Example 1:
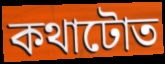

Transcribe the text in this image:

কথাটোত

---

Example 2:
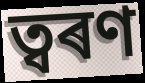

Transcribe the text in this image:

ত্বৰণ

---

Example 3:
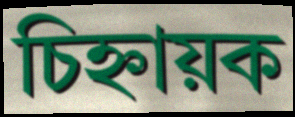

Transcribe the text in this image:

চিহ্নায়ক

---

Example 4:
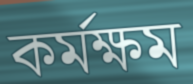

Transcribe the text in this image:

কৰ্মক্ষম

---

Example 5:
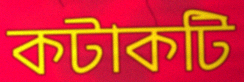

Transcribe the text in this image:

কটাকটি